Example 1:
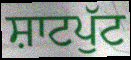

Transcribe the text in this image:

ਸ਼ਾਟਪੁੱਟ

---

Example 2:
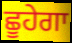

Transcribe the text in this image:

ਛੂਹੇਗਾ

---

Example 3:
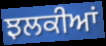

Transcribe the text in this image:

ਝਲਕੀਆਂ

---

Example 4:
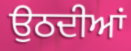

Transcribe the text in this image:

ਉਠਦੀਆਂ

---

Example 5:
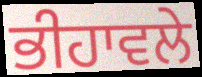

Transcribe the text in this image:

ਭੀਹਾਵਲੇ